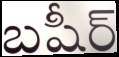
బషీర్